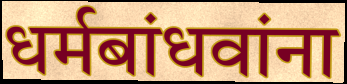
धर्मबांधवांना